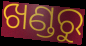
ଖଣ୍ଡରୁ